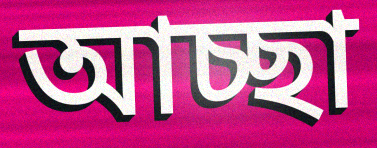
আচ্ছা